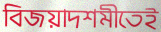
বিজয়াদশমীতেই